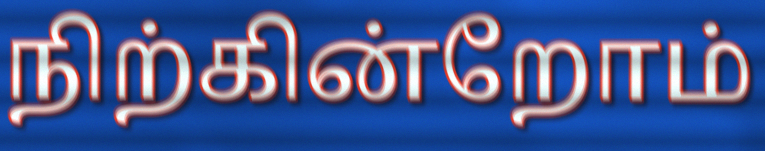
நிற்கின்றோம்